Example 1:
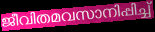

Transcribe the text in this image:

ജീവിതമവസാനിപ്പിച്ച്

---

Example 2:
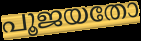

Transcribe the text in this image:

പൂജയതോ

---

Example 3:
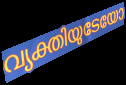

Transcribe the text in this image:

വ്യക്തിയുടേയോ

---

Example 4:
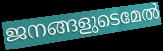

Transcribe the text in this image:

ജനങ്ങളുടെമേൽ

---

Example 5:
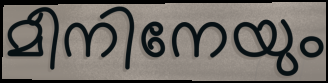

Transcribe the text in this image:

മീനിനേയും